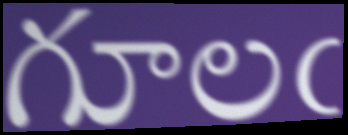
గూలఁ